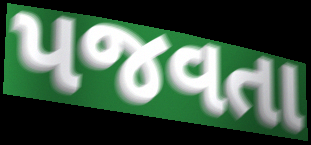
પજવતા